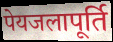
पेयजलापूर्ति